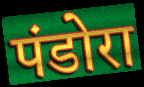
पंडोरा